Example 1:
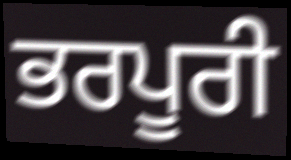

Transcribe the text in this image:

ਭਰਪੂਰੀ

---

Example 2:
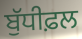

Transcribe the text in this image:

ਬੁੱਧੀਫ਼ਲ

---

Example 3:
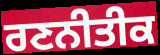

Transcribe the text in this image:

ਰਣਨੀਤੀਕ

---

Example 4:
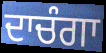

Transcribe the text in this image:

ਦਾਚੰਗਾ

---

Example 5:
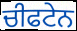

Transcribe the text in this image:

ਚੀਫਟੇਨ